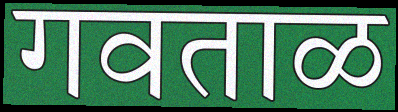
गवताळ